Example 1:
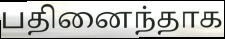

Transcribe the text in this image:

பதினைந்தாக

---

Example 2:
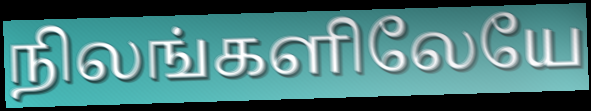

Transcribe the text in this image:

நிலங்களிலேயே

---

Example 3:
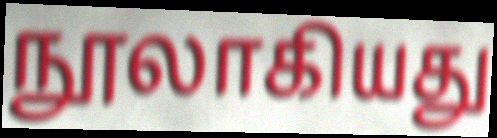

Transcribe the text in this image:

நூலாகியது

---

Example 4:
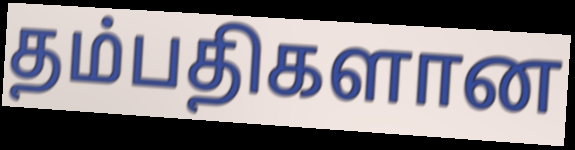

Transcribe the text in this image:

தம்பதிகளான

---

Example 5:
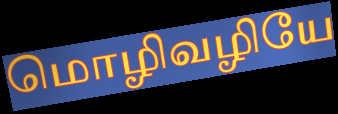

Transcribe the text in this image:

மொழிவழியே